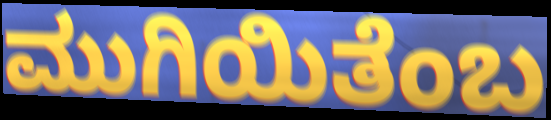
ಮುಗಿಯಿತೆಂಬ